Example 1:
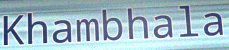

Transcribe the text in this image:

Khambhala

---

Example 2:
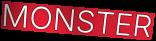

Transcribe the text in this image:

MONSTER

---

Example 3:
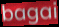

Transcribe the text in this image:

bagai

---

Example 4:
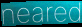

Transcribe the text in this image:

neared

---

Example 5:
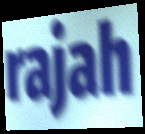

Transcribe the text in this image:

rajah